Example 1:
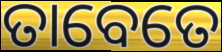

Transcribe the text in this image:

ତାବେତେ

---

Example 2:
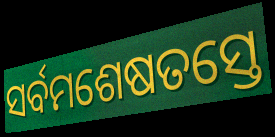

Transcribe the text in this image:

ସର୍ବମଶେଷତସ୍ତେ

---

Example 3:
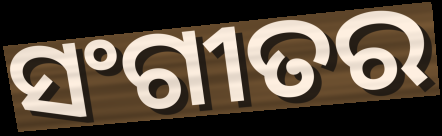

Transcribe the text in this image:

ସଂଗୀତର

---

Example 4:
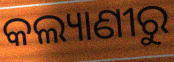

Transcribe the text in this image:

କଲ୍ୟାଣୀରୁ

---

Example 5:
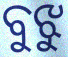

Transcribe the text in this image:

ବୁଝୁ